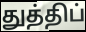
துத்திப்